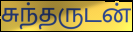
சுந்தருடன்